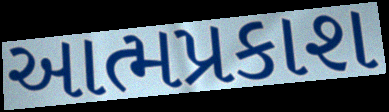
આત્મપ્રકાશ